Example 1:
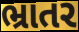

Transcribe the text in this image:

ભ્રાતર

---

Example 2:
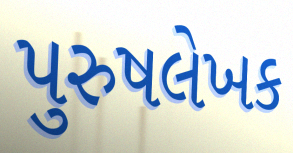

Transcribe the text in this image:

પુરુષલેખક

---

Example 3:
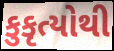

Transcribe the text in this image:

કુકૃત્યોથી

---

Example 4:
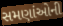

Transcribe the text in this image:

સમણાંઓની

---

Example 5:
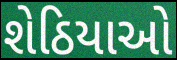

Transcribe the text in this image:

શેઠિયાઓ